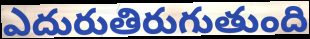
ఎదురుతిరుగుతుంది